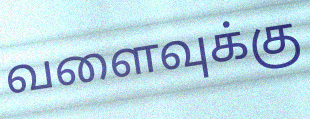
வளைவுக்கு